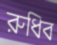
রুধিব